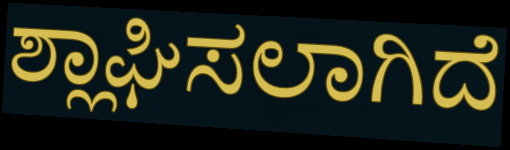
ಶ್ಲಾಘಿಸಲಾಗಿದೆ